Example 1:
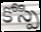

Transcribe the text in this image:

కోస్పి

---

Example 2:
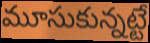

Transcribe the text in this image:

మూసుకున్నట్టే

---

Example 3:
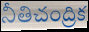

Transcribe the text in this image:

నీతిచంద్రిక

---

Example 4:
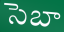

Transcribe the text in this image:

సెబా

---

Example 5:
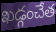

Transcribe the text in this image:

ఖడ్గంచేత